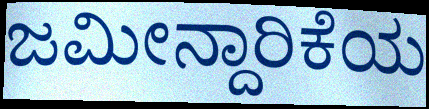
ಜಮೀನ್ದಾರಿಕೆಯ